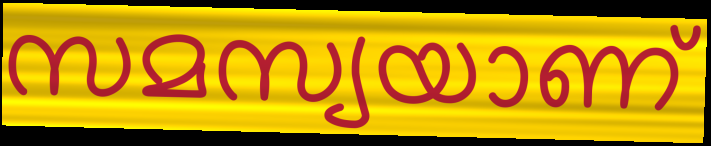
സമസ്യയാണ്